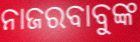
ନାଜରବାବୁଙ୍କ